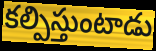
కల్పిస్తుంటాడు